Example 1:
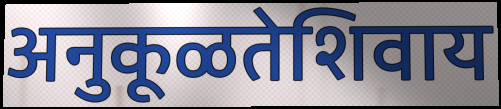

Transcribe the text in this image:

अनुकूळतेशिवाय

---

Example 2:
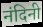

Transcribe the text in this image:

नंदिनी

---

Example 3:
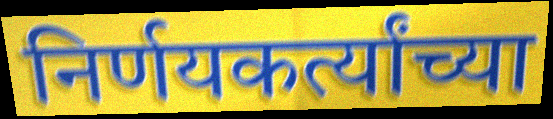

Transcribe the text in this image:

निर्णयकर्त्यांच्या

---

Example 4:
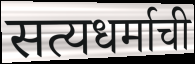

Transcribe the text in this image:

सत्यधर्माची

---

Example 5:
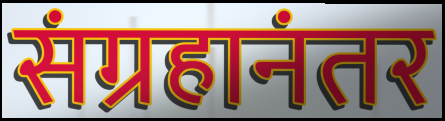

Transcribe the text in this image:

संग्रहानंतर